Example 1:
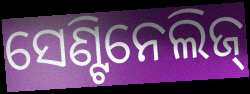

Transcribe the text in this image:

ସେଣ୍ଟିନେଲିଜ୍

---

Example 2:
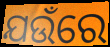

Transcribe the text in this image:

ଯଉଁରେ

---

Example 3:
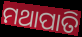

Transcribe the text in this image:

ମଥାପାତି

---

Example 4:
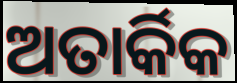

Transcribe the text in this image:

ଅତାର୍କିକ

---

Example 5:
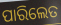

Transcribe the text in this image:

ପାରିଲେତ